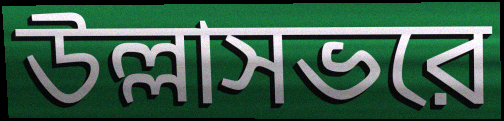
উল্লাসভরে